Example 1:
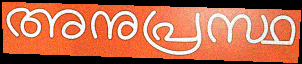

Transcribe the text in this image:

അനുപ്രസ്ഥ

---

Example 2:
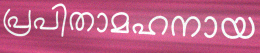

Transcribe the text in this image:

പ്രപിതാമഹനായ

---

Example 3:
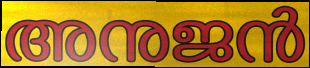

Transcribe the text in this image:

അനുജൻ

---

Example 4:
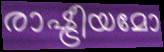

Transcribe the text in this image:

രാഷ്ട്രീയമോ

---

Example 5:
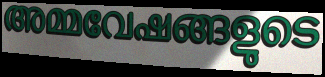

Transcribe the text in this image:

അമ്മവേഷങ്ങളുടെ